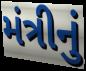
મંત્રીનું